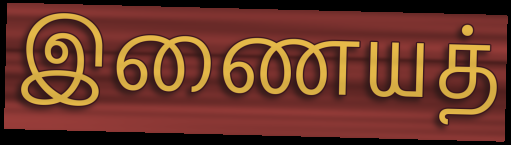
இணையத்